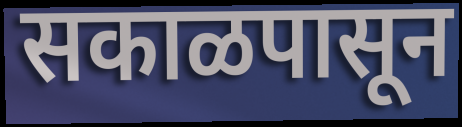
सकाळपासून